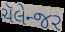
ચૅલેન્જર